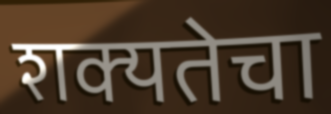
शक्यतेचा